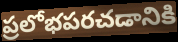
ప్రలోభపరచడానికి